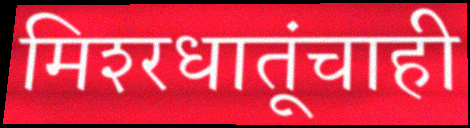
मिश्रधातूंचाही